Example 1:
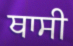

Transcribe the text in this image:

ਥਾਸੀ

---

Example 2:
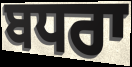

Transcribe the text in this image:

ਬਧਰਾ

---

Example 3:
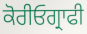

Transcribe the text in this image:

ਕੋਰੀਓਗ੍ਰਾਫੀ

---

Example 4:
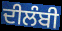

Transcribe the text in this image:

ਦੀਲੰਬੀ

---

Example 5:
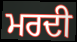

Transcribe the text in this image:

ਮਰਦੀ